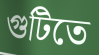
গুটিতে